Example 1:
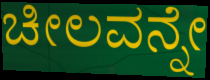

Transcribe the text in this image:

ಚೀಲವನ್ನೇ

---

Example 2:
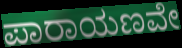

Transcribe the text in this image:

ಪಾರಾಯಣವೇ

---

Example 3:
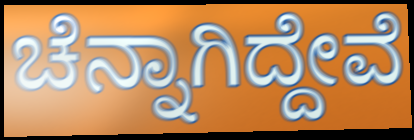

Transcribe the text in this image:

ಚೆನ್ನಾಗಿದ್ದೇವೆ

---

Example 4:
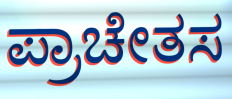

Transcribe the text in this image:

ಪ್ರಾಚೇತಸ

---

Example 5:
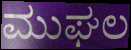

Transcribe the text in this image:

ಮುಘಲ